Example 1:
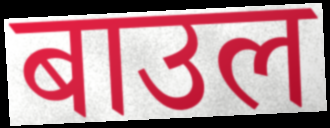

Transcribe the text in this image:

बाउल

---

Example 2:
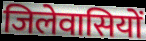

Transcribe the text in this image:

जिलेवासियों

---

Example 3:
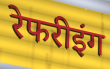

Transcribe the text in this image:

रेफरीइंग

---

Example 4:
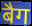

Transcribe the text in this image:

बैग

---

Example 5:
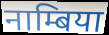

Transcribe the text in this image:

नाम्बिया